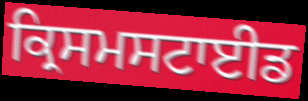
ਕ੍ਰਿਸਮਸਟਾਈਡ